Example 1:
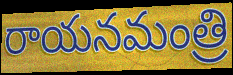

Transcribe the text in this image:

రాయనమంత్రి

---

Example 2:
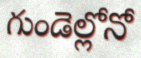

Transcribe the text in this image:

గుండెల్లోనో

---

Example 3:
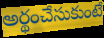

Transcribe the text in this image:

అర్థంచేసుకుంటే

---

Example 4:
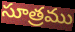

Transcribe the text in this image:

సూత్రము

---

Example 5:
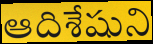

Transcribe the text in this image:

ఆదిశేషుని